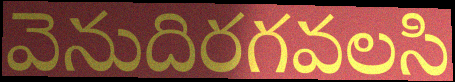
వెనుదిరగవలసి